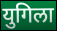
युगिला